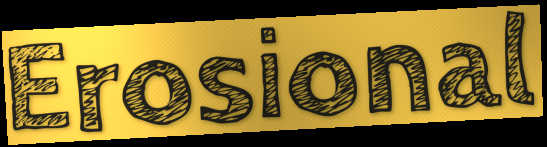
Erosional